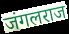
जंगलराज